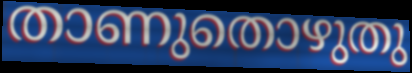
താണുതൊഴുതു